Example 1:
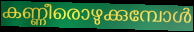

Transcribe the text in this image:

കണ്ണീരൊഴുക്കുമ്പോൾ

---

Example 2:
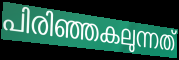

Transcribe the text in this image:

പിരിഞ്ഞകലുന്നത്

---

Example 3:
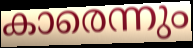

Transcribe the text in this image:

കാരെന്നും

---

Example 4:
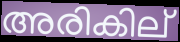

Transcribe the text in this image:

അരികില്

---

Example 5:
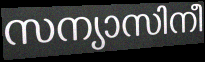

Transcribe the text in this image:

സന്യാസിനീ